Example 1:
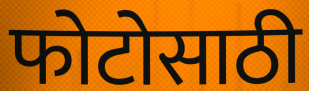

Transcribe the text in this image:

फोटोसाठी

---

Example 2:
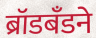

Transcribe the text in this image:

ब्रॉडबँडने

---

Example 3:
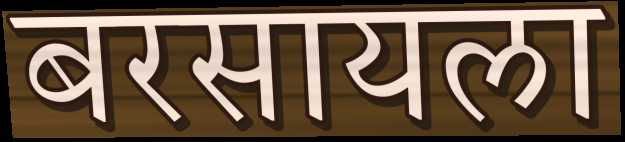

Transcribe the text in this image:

बरसायला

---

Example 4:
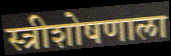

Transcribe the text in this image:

स्त्रीशोषणाला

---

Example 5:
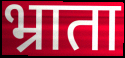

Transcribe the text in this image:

भ्राता